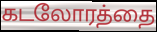
கடலோரத்தை